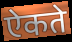
ऐकते